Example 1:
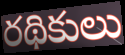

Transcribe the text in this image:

రథికులు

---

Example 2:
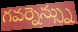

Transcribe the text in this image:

గవర్నెన్స్ను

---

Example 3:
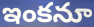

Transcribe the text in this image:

ఇంకనూ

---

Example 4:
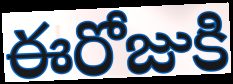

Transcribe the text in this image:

ఈరోజుకి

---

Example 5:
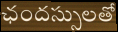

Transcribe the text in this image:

ఛందస్సులతో